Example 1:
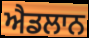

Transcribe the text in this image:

ਐਡਲਾਨ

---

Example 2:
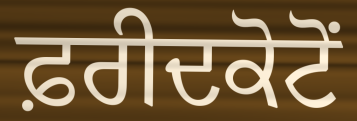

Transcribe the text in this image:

ਫ਼ਰੀਦਕੋਟੋਂ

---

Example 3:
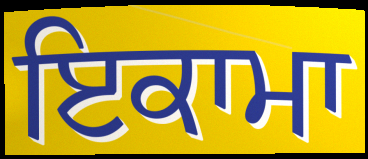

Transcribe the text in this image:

ਇਕਾਮਾ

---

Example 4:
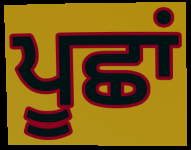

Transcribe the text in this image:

ਪੂਛਾਂ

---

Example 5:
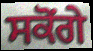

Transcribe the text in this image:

ਸਕੋਂਗੇ